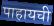
पाहायची